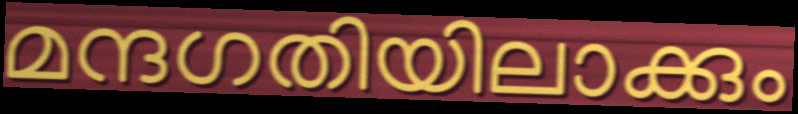
മന്ദഗതിയിലാക്കും